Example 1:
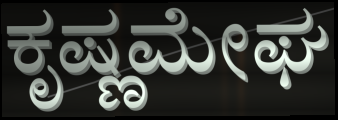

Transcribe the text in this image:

ಕೃಷ್ಣಮೇಘ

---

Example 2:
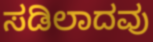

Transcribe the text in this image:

ಸಡಿಲಾದವು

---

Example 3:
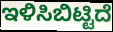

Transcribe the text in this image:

ಇಳಿಸಿಬಿಟ್ಟಿದೆ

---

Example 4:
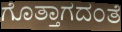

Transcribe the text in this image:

ಗೊತ್ತಾಗದಂತೆ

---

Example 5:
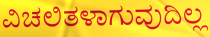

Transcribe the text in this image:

ವಿಚಲಿತಳಾಗುವುದಿಲ್ಲ